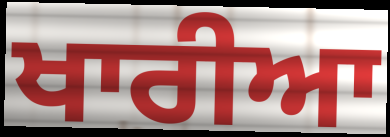
ਖਾਰੀਆ